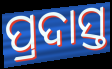
ପ୍ରଦାସ୍ତ